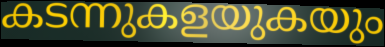
കടന്നുകളയുകയും